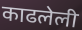
काढलेली